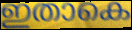
ഇതാകെ